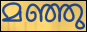
മഞ്ഞു